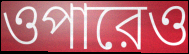
ওপারেও